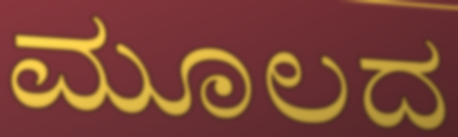
ಮೂಲದ